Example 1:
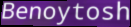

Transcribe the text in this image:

Benoytosh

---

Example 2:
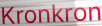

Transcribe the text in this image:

Kronkron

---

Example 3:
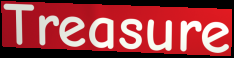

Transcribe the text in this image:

Treasure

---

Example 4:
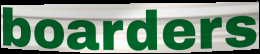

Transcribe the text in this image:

boarders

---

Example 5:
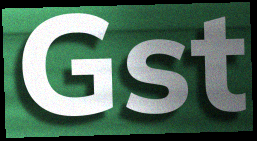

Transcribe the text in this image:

Gst